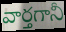
వార్తగానీ